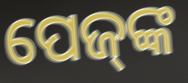
ପେଜ୍‌ଙ୍କ